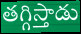
తగ్గిస్తాడు